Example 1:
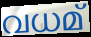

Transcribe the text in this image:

വധമ്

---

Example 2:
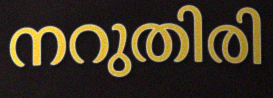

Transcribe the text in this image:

നറുതിരി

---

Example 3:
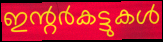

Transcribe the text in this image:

ഇന്റർകട്ടുകൾ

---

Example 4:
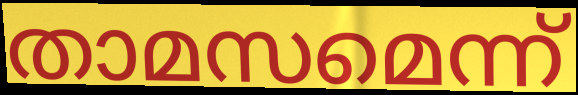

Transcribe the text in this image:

താമസമെന്ന്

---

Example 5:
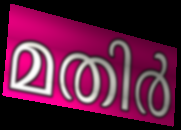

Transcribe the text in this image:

മതിർ